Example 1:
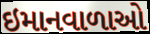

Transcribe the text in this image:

ઇમાનવાળાઓ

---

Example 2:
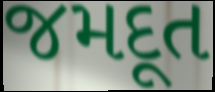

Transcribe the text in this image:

જમદૂત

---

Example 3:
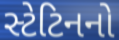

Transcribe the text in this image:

સ્ટેટિનનો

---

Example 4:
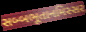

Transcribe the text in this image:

સબ્બભૂતાનમિસ્સર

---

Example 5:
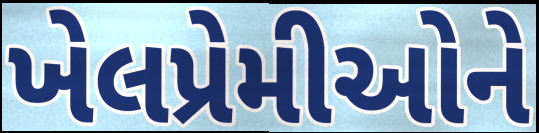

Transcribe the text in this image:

ખેલપ્રેમીઓને